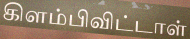
கிளம்பிவிட்டாள்